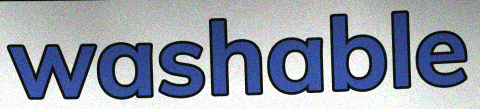
washable